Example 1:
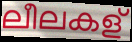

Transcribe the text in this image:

ലീലകള്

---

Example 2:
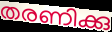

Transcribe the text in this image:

തരണിക്കു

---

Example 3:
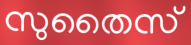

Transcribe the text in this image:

സുതൈസ്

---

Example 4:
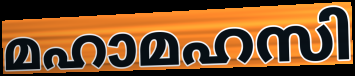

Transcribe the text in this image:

മഹാമഹസി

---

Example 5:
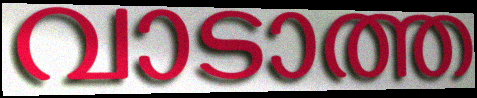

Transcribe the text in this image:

വാടാത്ത